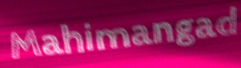
Mahimangad